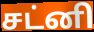
சட்னி